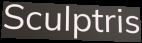
Sculptris